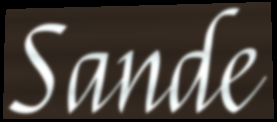
Sande